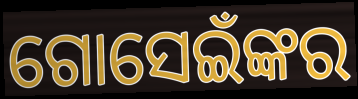
ଗୋସେଇଁଙ୍କର